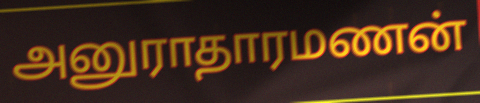
அனுராதாரமணன்